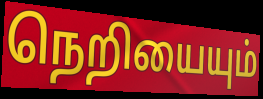
நெறியையும்